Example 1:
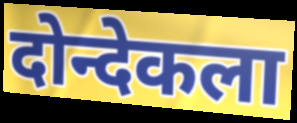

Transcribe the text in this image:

दोन्देकला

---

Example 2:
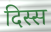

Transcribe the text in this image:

दिस्स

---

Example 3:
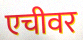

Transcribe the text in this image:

एचीवर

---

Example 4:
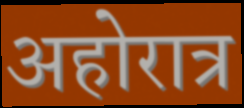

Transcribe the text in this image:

अहोरात्र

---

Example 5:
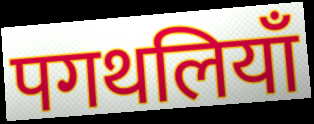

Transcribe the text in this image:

पगथलियाँ